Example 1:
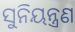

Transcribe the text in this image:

ସୁନିୟନ୍ତ୍ରଣ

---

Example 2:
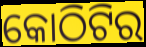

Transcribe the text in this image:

କୋଠିଟିର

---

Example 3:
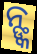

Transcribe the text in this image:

ନ୍ଙ୍କ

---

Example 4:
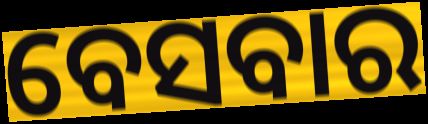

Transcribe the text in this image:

ବେସବାର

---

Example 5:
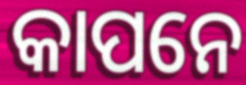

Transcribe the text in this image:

କାପନେ